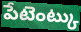
పేటెంట్కు